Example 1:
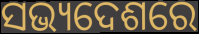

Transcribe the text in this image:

ସଭ୍ୟଦେଶରେ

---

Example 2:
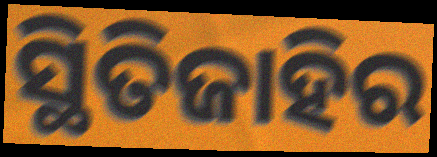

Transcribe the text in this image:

ସ୍ଥିତିଜାହିର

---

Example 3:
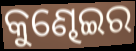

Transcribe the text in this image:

କୁଣ୍ଢେଇର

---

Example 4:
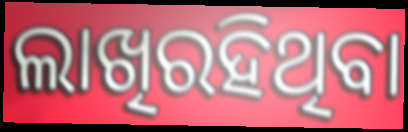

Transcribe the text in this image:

ଲାଖିରହିଥିବା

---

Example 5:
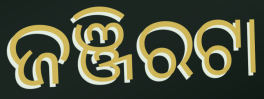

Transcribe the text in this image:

ଜଞ୍ଜିରଟା